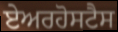
ਏਅਰਹੋਸਟੈਸ